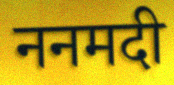
ननमदी